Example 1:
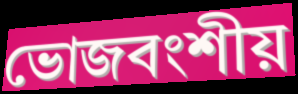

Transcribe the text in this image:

ভোজবংশীয়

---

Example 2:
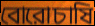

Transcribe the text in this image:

বোরোচাষি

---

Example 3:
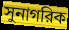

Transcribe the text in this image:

সুনাগরিক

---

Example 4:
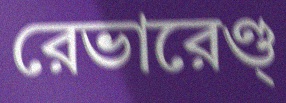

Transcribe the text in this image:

রেভারেণ্ড্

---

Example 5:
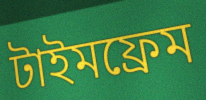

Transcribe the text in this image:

টাইমফ্রেম